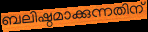
ബലിഷ്ഠമാക്കുന്നതിന്